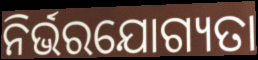
ନିର୍ଭରଯୋଗ୍ୟତା